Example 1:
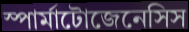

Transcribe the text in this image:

স্পার্মাটোজেনেসিস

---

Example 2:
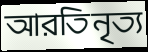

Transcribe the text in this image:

আরতিনৃত্য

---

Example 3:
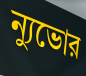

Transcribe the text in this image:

ন্যুভোর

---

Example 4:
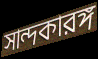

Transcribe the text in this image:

সান্দকারঙ্গ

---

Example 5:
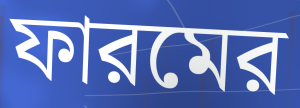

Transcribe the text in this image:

ফারমের